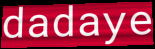
dadaye